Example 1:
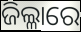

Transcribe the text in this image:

ଜିଲ୍ଳାରେ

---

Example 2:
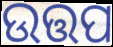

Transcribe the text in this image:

ଉତ୍ତପ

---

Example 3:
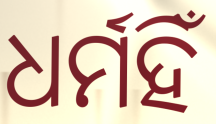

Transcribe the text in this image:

ଧର୍ମହିଁ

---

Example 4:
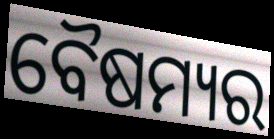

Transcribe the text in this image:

ବୈଷମ୍ଯର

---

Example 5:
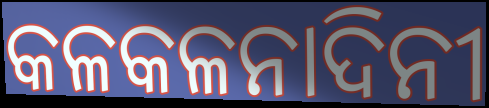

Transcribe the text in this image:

କଳକଳନାଦିନୀ